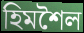
হিমশৈল